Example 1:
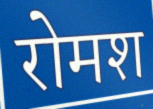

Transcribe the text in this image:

रोमश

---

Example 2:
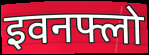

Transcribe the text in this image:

इवनफ्लो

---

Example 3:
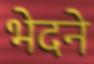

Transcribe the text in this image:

भेदने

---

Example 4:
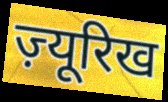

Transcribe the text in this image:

ज़्यूरिख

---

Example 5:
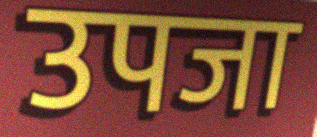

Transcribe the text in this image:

उपजा